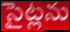
సైట్లను